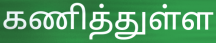
கணித்துள்ள